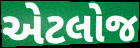
એટલોજ